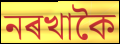
নৰখাকৈ